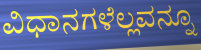
ವಿಧಾನಗಳೆಲ್ಲವನ್ನೂ